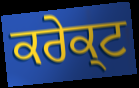
ਕਰੇਕ੍ਟ